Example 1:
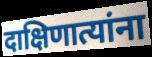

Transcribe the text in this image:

दाक्षिणात्यांना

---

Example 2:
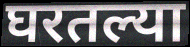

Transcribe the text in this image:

घरतल्या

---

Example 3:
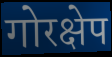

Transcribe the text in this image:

गोरक्षेप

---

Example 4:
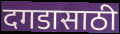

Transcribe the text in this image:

दगडासाठी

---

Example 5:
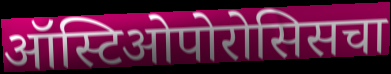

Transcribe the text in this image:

ऑस्टिओपोरोसिसचा